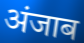
अंजाब